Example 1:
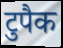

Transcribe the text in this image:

टुपैक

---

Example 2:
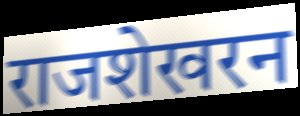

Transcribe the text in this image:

राजशेखरन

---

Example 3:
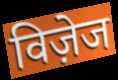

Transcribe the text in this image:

विज़ेज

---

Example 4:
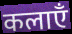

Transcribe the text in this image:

कलाएँ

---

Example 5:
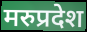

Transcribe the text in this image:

मरुप्रदेश